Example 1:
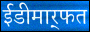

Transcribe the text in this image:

ईडीमार्फत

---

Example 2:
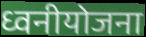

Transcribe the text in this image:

ध्वनीयोजना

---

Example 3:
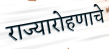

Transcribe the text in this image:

राज्यारोहणाचे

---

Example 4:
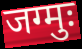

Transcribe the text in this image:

जग्मुः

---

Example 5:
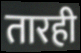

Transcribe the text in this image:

तारही